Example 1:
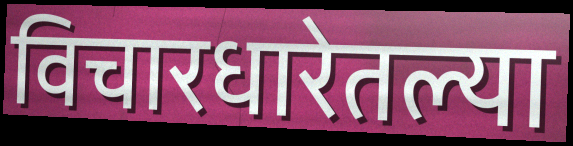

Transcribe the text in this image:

विचारधारेतल्या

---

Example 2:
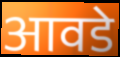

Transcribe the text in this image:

आवडे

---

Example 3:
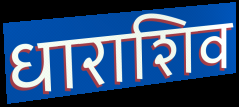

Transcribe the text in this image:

धाराशिव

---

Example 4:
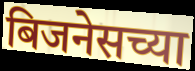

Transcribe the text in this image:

बिजनेसच्या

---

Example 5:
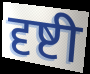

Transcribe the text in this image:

दृष्टी